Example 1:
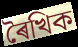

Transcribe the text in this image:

ৰৈখিক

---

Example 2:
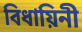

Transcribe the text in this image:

বিধায়িনী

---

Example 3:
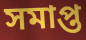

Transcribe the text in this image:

সমাপ্ত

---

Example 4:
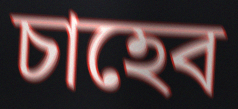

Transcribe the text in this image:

চাহেব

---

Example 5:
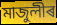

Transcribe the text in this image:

মাজুলীৰ